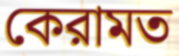
কেরামত